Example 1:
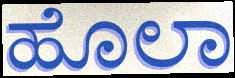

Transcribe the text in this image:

ಹೊಲಾ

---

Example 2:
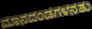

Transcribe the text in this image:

ಮಾನದಂಡಗಳನತು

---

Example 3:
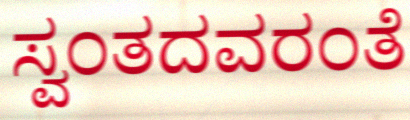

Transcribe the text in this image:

ಸ್ವಂತದವರಂತೆ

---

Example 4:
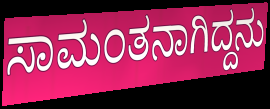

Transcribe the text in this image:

ಸಾಮಂತನಾಗಿದ್ದನು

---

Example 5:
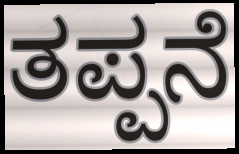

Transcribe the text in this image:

ತಪ್ಪನೆ